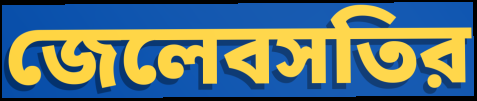
জেলেবসতির